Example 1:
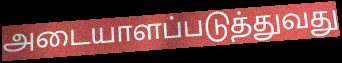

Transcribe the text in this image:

அடையாளப்படுத்துவது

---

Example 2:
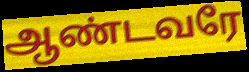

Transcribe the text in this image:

ஆண்டவரே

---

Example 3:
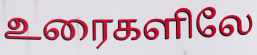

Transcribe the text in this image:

உரைகளிலே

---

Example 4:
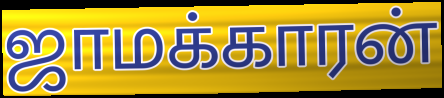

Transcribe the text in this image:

ஜாமக்காரன்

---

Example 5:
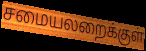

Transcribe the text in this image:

சமையலறைக்குள்